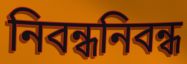
নিবন্ধনিবন্ধ